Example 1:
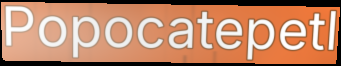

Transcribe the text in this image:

Popocatepetl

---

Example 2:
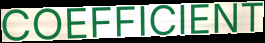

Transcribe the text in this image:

COEFFICIENT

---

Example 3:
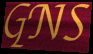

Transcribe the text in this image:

GNS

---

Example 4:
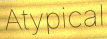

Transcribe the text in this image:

Atypical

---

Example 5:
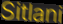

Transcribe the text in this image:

Sitlani